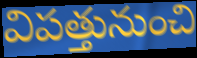
విపత్తునుంచి